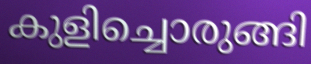
കുളിച്ചൊരുങ്ങി